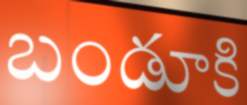
బండూకి